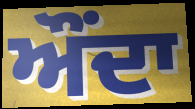
ਔਂਦਾ